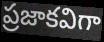
ప్రజాకవిగా